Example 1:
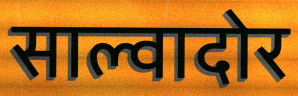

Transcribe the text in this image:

साल्वादोर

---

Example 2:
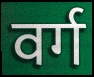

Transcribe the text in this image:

वर्ग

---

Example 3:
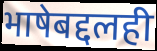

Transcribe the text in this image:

भाषेबद्दलही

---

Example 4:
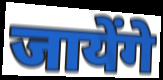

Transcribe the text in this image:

जायेंगे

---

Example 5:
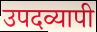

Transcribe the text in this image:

उपदव्यापी